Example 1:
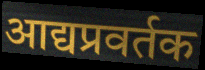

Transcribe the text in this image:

आद्यप्रवर्तक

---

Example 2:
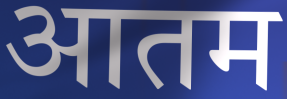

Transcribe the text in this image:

आतम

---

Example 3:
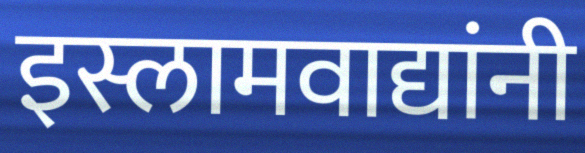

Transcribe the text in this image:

इस्लामवाद्यांनी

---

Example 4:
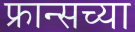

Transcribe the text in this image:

फ्रान्सच्या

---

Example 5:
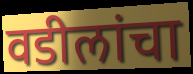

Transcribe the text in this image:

वडीलांचा